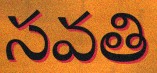
సవతి